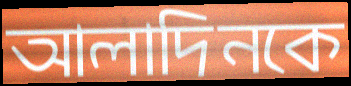
আলাদিনকে